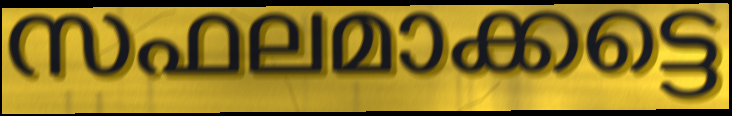
സഫലമാക്കട്ടെ